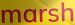
marsh